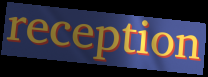
reception